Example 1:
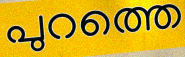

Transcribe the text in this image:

പുറത്തെ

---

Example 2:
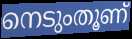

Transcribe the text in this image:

നെടുംതൂണ്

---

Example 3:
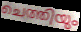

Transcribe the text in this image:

ചെത്തിയും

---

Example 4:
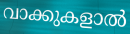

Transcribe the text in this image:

വാക്കുകളാൽ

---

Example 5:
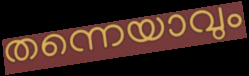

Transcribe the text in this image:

തന്നെയാവും